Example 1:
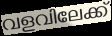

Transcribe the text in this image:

വളവിലേക്ക്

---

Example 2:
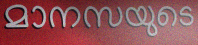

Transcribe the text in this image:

മാനസയുടെ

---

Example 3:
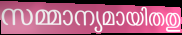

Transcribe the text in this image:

സമ്മാന്യമായിതതു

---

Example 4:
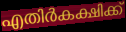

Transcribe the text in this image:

എതിർകക്ഷിക്ക്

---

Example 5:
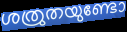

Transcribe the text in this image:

ശത്രുതയുണ്ടോ